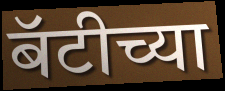
बॅटीच्या